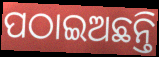
ପଠାଇଅଛନ୍ତି